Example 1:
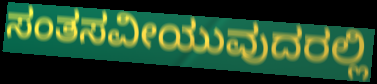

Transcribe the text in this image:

ಸಂತಸವೀಯುವುದರಲ್ಲಿ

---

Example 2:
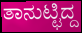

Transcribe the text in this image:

ತಾನುಟ್ಟಿದ್ದ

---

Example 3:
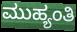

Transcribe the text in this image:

ಮುಹ್ಯಂತಿ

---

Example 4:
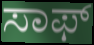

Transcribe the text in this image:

ಸಾಫ್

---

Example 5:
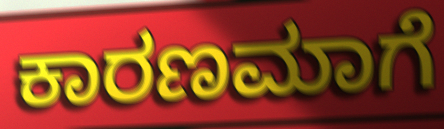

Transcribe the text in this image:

ಕಾರಣಮಾಗೆ